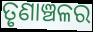
ତୃଣାଞ୍ଚଳର